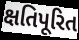
ક્ષતિપૂરિત